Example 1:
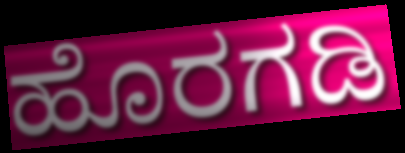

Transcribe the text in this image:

ಹೊರಗಡಿ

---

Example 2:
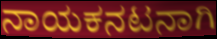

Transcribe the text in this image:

ನಾಯಕನಟನಾಗಿ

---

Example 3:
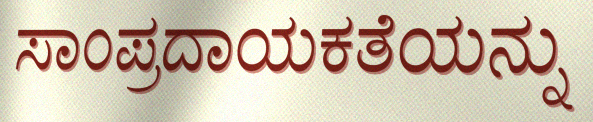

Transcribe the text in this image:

ಸಾಂಪ್ರದಾಯಕತೆಯನ್ನು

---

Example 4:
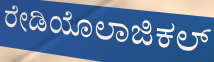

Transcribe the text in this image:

ರೇಡಿಯೊಲಾಜಿಕಲ್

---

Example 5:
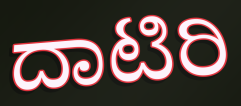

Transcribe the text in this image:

ದಾಟಿರಿ